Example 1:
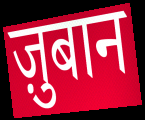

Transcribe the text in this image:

ज़ुबान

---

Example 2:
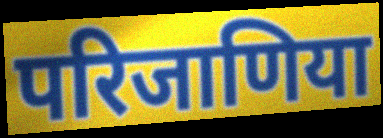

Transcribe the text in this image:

परिजाणिया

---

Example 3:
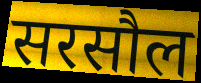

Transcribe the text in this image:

सरसौल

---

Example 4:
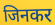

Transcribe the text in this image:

जिनकर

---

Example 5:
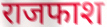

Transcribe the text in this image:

राजफाश